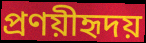
প্রণয়ীহৃদয়